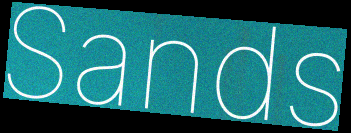
Sands